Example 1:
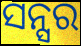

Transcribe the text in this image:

ସନ୍ସର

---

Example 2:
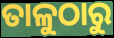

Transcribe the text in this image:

ତାଳୁଠାରୁ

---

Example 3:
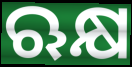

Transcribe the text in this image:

ଋକ୍ଷ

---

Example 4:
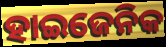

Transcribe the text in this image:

ହାଇଜେନିକ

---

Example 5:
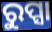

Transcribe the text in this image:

ରୁପ୍ସା